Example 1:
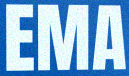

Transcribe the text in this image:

EMA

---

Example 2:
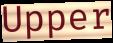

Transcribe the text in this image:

Upper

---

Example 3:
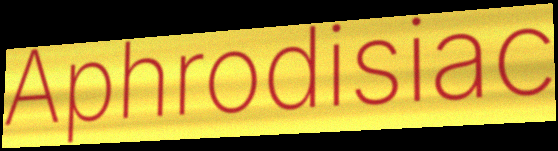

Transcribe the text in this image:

Aphrodisiac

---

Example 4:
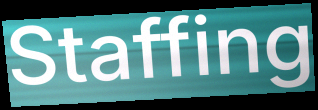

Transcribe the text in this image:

Staffing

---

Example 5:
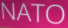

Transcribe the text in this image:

NATO